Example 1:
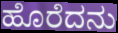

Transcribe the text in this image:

ಹೊರೆದನು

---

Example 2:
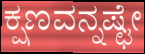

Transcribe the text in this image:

ಕ್ಷಣವನ್ನಷ್ಟೇ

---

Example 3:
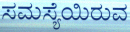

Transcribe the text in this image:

ಸಮಸ್ಯೆಯಿರುವ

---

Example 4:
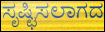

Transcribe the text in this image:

ಸೃಷ್ಟಿಸಲಾಗದ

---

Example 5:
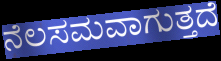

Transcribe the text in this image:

ನೆಲಸಮವಾಗುತ್ತದೆ